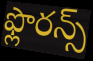
ఫ్లొరన్స్